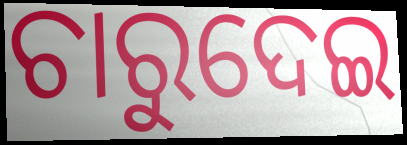
ଚାରୁଦେଇ